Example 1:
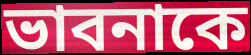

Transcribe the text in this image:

ভাবনাকে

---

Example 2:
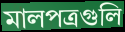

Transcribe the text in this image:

মালপত্রগুলি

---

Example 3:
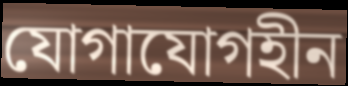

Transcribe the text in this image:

যোগাযোগহীন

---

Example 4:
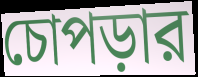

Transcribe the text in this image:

চোপড়ার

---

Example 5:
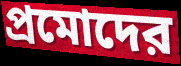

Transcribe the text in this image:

প্রমোদের